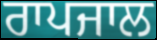
ਰਾਪਜਾਲ